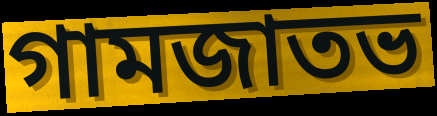
গামজাতভ